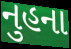
નુહના